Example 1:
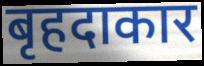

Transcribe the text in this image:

बृहदाकार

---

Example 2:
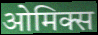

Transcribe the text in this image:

ओमिक्स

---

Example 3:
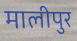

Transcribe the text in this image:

मालीपुर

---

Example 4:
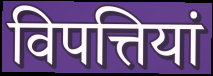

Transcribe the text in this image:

विपत्तियां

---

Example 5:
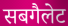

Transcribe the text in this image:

सबगैलेट